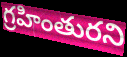
గ్రహింతురని